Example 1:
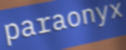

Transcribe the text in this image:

paraonyx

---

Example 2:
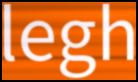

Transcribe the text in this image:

legh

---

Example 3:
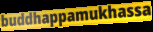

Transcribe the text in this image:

buddhappamukhassa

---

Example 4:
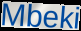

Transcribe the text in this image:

Mbeki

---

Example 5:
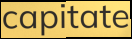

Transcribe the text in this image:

capitate